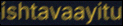
ishtavaayitu